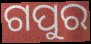
ଗପୁର